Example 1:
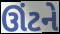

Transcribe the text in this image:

ઊંટને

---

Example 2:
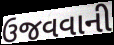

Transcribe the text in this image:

ઉજવવાની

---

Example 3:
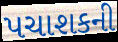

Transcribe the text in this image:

પચાશકની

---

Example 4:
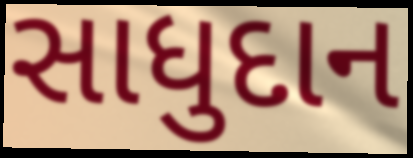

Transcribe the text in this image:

સાધુદાન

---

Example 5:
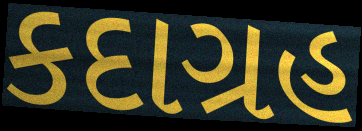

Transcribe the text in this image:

કદાગ્રહ